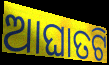
ଆଘାତଟି